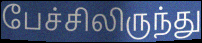
பேச்சிலிருந்து